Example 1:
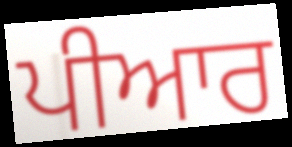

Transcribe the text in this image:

ਪੀਆਰ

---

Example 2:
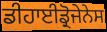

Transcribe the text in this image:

ਡੀਹਾਈਡ੍ਰੋਜੇਨੇਸ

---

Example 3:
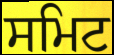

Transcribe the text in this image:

ਸਮਿਟ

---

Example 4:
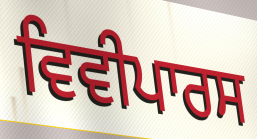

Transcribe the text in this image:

ਵਿਵੀਪਾਰਸ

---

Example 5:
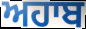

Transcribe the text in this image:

ਅਹਾਬ